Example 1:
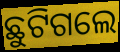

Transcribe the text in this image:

ଛୁଟିଗଲେ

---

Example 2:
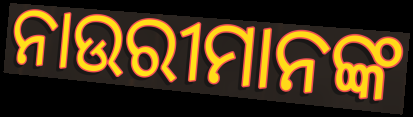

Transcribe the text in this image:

ନାଉରୀମାନଙ୍କ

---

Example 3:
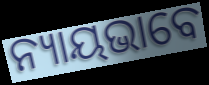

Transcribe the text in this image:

ନ୍ୟାୟଭାବେ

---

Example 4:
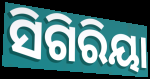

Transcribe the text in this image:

ସିଗିରିୟା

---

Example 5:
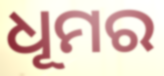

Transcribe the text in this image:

ଧୂମର